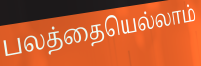
பலத்தையெல்லாம்